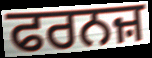
ਫਰਨਜ਼